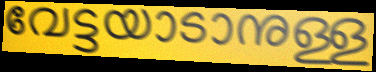
വേട്ടയാടാനുള്ള